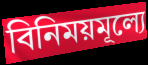
বিনিময়মূল্যে